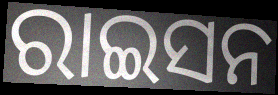
ରାଇସନ